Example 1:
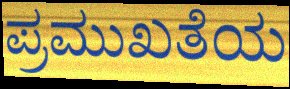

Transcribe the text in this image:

ಪ್ರಮುಖತೆಯ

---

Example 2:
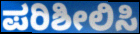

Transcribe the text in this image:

ಪರಿಶೀಲಿಸಿ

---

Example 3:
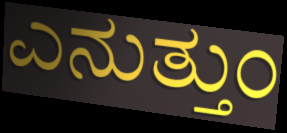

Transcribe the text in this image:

ಎನುತ್ತುಂ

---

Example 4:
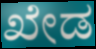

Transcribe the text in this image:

ಖೇಡ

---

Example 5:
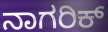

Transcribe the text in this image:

ನಾಗರಿಕ್